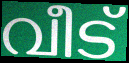
വീട്